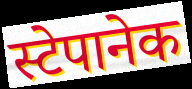
स्टेपानेक